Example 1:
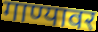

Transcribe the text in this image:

गाण्यावर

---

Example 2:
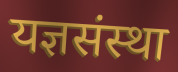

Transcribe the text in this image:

यज्ञसंस्था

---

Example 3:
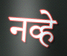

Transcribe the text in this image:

नव्हे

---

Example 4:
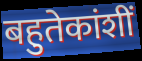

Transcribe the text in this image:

बहुतेकांशीं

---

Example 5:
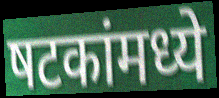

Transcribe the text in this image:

षटकांमध्ये